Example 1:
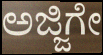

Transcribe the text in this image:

ಅಜ್ಜಿಗೇ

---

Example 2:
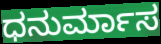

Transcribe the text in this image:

ಧನುರ್ಮಾಸ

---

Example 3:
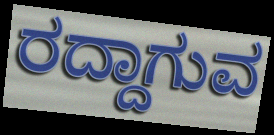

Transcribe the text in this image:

ರದ್ದಾಗುವ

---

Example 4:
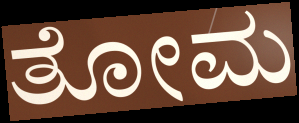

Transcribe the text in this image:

ತೋಮ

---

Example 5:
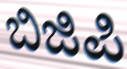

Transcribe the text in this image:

ಬಿಜಿಪಿ